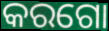
କରଗୋ